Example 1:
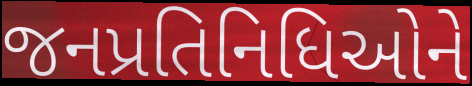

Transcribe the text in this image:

જનપ્રતિનિધિઓને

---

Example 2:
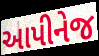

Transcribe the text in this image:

આપીનેજ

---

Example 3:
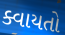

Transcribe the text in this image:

ક્વાયતો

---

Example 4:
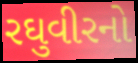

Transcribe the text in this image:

રઘુવીરનો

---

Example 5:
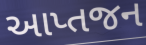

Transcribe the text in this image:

આપ્તજન